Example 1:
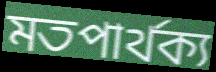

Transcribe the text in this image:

মতপার্থক্য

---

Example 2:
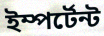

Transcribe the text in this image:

ইম্পর্টেন্ট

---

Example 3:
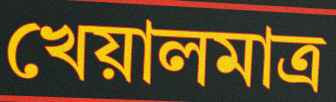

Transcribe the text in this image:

খেয়ালমাত্র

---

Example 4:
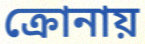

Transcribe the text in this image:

ক্রোনায়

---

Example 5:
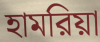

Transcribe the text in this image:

হামরিয়া